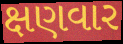
ક્ષણવાર